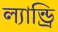
ল্যান্ড্রি